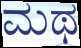
ಮಥ